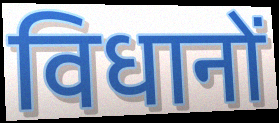
विधानों